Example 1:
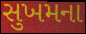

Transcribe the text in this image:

સુખમના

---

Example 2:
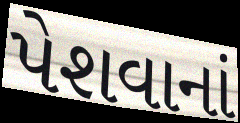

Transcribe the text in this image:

પેશવાનાં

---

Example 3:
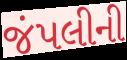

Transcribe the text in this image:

જંપલીની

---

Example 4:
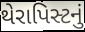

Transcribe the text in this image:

થેરાપિસ્ટનું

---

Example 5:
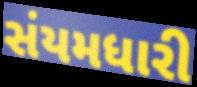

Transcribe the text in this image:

સંયમધારી